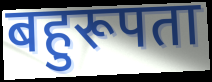
बहुरूपता